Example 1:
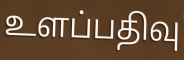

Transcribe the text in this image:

உளப்பதிவு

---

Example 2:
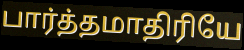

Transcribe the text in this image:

பார்த்தமாதிரியே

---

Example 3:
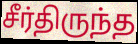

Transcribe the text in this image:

சீர்திருந்த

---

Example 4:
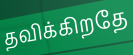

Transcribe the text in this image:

தவிக்கிறதே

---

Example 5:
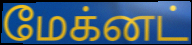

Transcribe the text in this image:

மேக்னட்